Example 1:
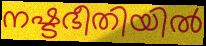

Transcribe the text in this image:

നഷ്ടഭീതിയിൽ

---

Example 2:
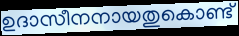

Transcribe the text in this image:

ഉദാസീനനായതുകൊണ്ട്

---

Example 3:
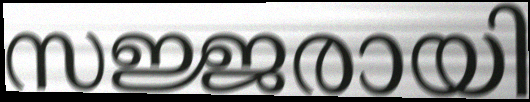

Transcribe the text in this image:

സജ്ജരായി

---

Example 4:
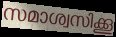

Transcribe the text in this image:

സമാശ്വസിക്കൂ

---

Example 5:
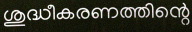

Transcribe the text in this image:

ശുദ്ധീകരണത്തിന്റെ